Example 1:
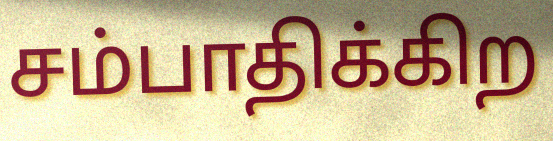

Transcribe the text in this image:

சம்பாதிக்கிற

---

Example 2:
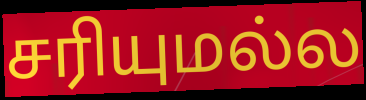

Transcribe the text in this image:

சரியுமல்ல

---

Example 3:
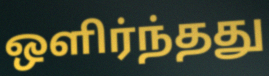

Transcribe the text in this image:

ஒளிர்ந்தது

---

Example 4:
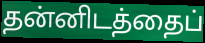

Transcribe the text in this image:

தன்னிடத்தைப்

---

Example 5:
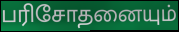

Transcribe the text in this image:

பரிசோதனையும்